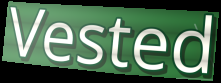
Vested